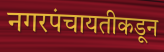
नगरपंचायतीकडून